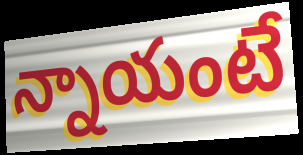
న్నాయంటే